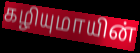
கழியுமாயின்